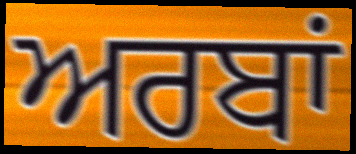
ਅਰਬਾਂ